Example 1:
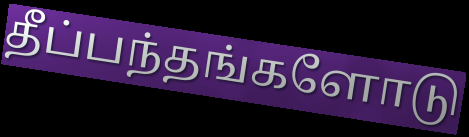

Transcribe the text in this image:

தீப்பந்தங்களோடு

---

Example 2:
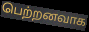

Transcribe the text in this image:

பெற்றனவாக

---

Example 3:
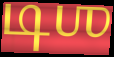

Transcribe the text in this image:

டிஶ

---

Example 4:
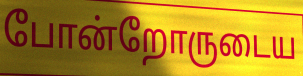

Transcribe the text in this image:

போன்றோருடைய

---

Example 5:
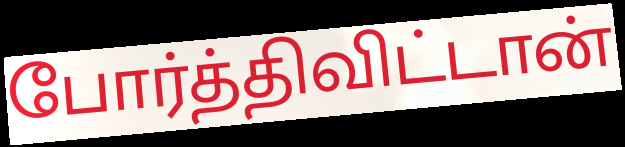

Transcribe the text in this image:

போர்த்திவிட்டான்